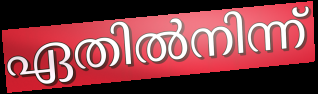
ഏതിൽനിന്ന്